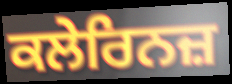
ਕਲੇਰਿਨਜ਼